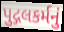
પુદ્ગલકર્મનું